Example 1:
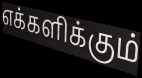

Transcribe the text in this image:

எக்களிக்கும்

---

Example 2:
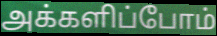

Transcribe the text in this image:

அக்களிப்போம்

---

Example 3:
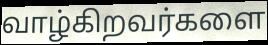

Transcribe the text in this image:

வாழ்கிறவர்களை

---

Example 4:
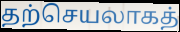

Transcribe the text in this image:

தற்செயலாகத்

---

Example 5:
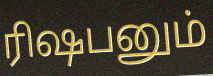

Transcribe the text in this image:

ரிஷபனும்